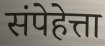
संपेहेत्ता